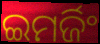
ଇମର୍ଜିଂ